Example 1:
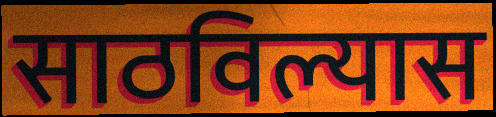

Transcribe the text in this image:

साठविल्यास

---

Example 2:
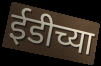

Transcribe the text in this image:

ईडीच्या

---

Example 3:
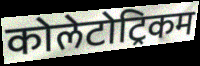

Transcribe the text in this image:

कोलेटोट्रिकम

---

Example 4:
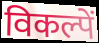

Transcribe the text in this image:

विकल्पें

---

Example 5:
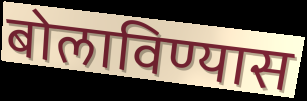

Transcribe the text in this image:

बोलाविण्यास